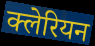
क्लेरियन